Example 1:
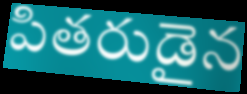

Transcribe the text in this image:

పితరుడైన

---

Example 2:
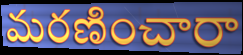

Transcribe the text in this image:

మరణించారా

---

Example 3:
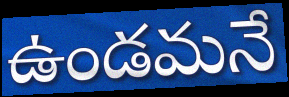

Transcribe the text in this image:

ఉండమనే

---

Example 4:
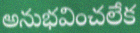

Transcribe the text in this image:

అనుభవించలేక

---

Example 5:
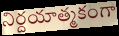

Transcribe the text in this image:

నిర్దయాత్మకంగా